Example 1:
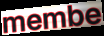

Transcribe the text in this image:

membe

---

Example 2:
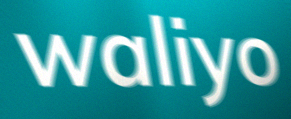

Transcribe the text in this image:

waliyo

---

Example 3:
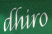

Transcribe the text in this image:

dhiro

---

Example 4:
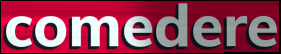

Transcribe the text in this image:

comedere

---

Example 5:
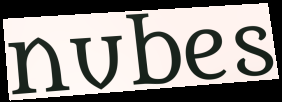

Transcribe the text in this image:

nubes